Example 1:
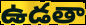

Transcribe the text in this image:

ఉడతా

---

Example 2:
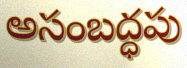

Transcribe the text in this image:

అసంబద్ధపు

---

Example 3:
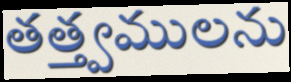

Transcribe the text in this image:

తత్త్వములను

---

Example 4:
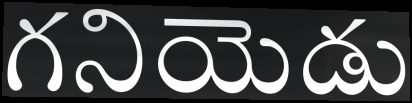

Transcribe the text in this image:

గనియెడు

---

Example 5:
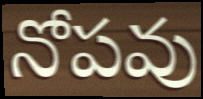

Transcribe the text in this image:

నోపవు